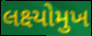
લક્ષ્યોમુખ